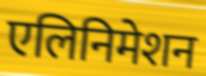
एलिनिमेशन